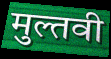
मुल्तवी